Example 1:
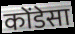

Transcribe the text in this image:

कोंडेसा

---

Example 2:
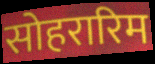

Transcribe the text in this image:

सोहरारिम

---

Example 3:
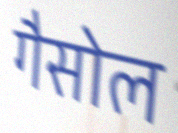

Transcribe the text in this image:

गैसोल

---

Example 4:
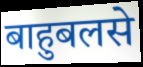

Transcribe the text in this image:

बाहुबलसे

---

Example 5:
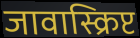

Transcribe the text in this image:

जावास्क्रिप्ट